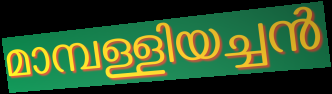
മാമ്പള്ളിയച്ചൻ